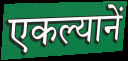
एकल्यानें